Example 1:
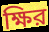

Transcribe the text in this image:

ক্ষির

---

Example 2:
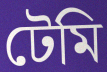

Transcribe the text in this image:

টেমি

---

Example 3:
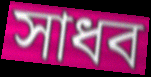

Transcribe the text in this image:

সাধব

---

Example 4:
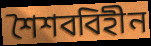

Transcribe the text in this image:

শৈশববিহীন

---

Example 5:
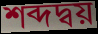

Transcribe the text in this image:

শব্দদ্বয়